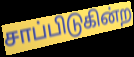
சாப்பிடுகின்ற